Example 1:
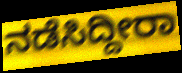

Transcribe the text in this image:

ನಡೆಸಿದ್ದೀರಾ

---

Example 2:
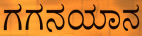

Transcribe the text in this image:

ಗಗನಯಾನ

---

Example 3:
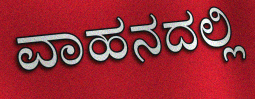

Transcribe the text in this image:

ವಾಹನದಲ್ಲಿ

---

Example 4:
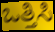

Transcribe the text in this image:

ಒತ್ತಿಸಿ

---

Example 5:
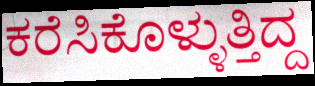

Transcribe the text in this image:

ಕರೆಸಿಕೊಳ್ಳುತ್ತಿದ್ದ